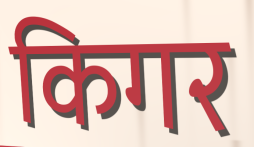
किगर